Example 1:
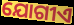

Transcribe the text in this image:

ଯୋଗୀଏ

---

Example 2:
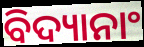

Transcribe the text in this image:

ବିଦ୍ୟାନାଂ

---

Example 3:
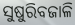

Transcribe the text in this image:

ସୁଷୁରିବଜାଳି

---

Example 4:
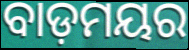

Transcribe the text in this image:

ବାଡ଼ମୟର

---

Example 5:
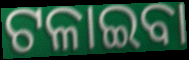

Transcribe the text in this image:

ଟଳାଇବା